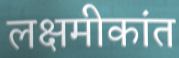
लक्षमीकांत